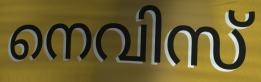
നെവിസ്